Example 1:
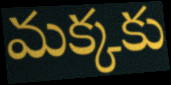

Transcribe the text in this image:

మక్కకు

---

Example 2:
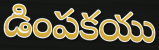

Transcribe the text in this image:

డింపకయు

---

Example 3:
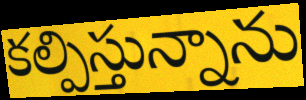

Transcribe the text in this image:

కల్పిస్తున్నాను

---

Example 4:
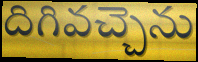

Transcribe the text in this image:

దిగివచ్చెను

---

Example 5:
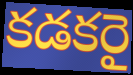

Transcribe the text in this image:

కడకరై